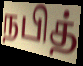
நபித்